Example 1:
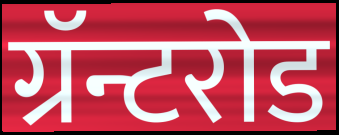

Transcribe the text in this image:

ग्रॅन्टरोड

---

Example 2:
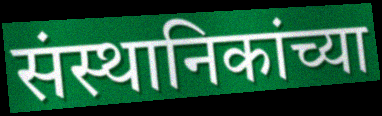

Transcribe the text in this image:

संस्थानिकांच्या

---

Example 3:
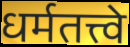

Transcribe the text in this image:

धर्मतत्त्वे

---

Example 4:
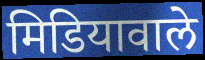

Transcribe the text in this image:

मिडियावाले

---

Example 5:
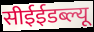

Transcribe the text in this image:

सीईईडब्ल्यू